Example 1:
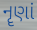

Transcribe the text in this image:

નૄણાં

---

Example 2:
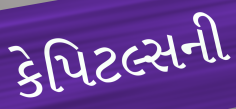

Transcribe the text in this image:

કેપિટલ્સની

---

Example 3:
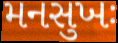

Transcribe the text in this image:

મનસુખઃ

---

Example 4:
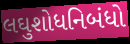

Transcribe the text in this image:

લઘુશોધનિબંધો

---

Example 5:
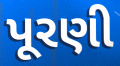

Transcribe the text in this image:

પૂરણી